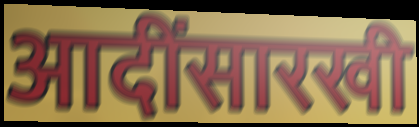
आदींसारखी